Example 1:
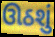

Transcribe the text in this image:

ઊઠશું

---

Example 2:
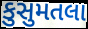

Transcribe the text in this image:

કુસુમતલા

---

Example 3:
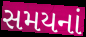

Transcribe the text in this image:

સમયનાં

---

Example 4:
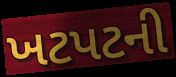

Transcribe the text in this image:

ખટપટની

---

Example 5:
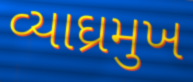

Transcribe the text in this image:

વ્યાઘ્રમુખ